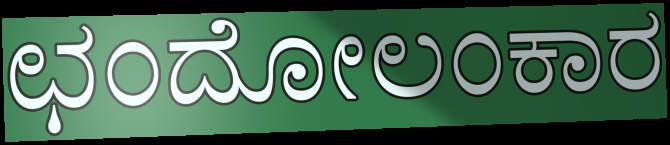
ಛಂದೋಲಂಕಾರ